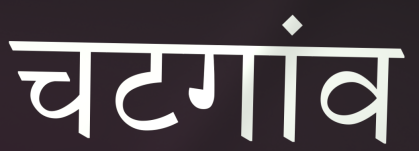
चटगांव